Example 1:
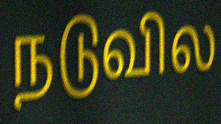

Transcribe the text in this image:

நடுவில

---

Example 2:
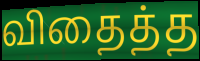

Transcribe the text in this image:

விதைத்த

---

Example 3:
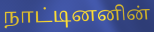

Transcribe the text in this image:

நாட்டினனின்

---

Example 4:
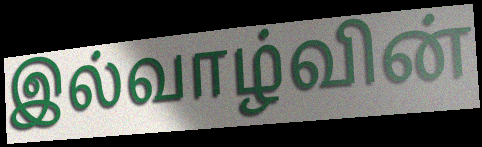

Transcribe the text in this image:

இல்வாழ்வின்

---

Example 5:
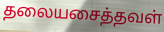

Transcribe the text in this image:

தலையசைத்தவள்